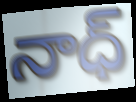
నాధ్